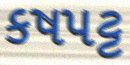
કષપટ્ટ